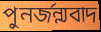
পুনর্জন্মবাদ